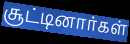
சூட்டினார்கள்